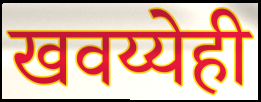
खवय्येही